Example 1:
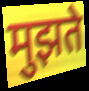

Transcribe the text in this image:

मुझते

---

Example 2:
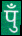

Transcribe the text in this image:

पुँ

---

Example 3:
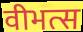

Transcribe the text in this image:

वीभत्स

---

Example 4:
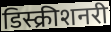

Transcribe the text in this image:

डिस्क्रीशनरी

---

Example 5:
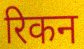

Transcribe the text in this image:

रिकन